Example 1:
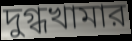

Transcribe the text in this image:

দুগ্ধখামার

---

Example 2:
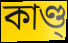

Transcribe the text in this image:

কাণ্ড্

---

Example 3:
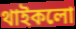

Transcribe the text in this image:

থাইকলো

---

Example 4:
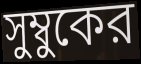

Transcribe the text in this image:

সুম্বুকের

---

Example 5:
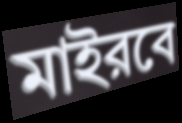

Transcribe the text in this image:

মাইরবে